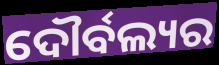
ଦୌର୍ବଲ୍ୟର